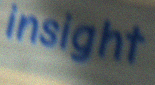
insight